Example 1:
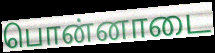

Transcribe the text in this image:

பொன்னாடை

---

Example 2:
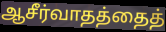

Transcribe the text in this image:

ஆசீர்வாதத்தைத்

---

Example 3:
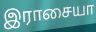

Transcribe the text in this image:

இராசையா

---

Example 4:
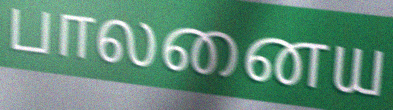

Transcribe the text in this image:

பாலனைய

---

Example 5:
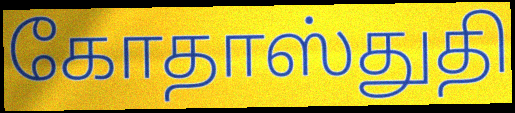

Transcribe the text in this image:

கோதாஸ்துதி